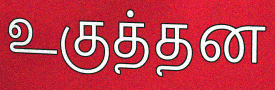
உகுத்தன